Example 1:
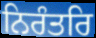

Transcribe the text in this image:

ਨਿਰੰਤਰਿ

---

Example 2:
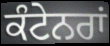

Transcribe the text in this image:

ਕੰਟੇਨਰਾਂ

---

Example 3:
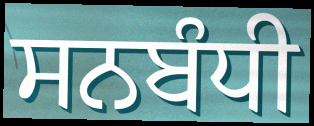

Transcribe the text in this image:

ਸਨਬੰਧੀ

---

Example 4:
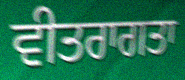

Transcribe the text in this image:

ਵੀਤਰਾਗਤਾ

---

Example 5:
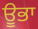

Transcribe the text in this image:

ਊਭਾ